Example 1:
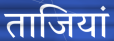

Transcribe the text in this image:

ताजियां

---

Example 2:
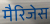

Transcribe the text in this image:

मैरिजेस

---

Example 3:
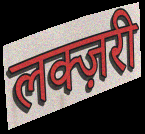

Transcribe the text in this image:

लक्ज़री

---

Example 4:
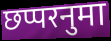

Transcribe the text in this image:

छप्परनुमा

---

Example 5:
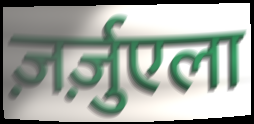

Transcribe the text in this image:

ज़र्ज़ुएला